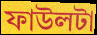
ফাউলটা